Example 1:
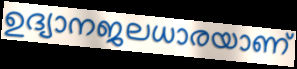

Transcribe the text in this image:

ഉദ്യാനജലധാരയാണ്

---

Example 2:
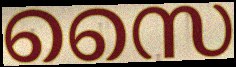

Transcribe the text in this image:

സൈ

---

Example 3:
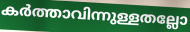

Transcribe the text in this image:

കർത്താവിന്നുള്ളതല്ലോ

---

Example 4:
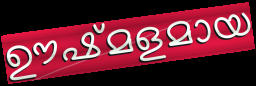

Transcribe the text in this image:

ഊഷ്മളമായ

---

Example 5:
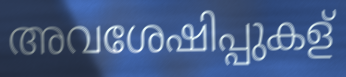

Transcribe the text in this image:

അവശേഷിപ്പുകള്